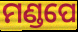
ମଣ୍ଡପେ